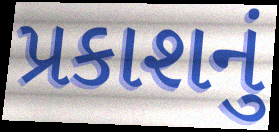
પ્રકાશનું